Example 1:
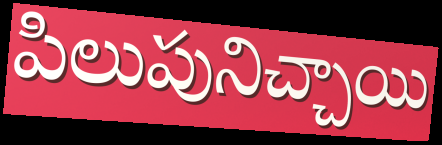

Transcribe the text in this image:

పిలుపునిచ్చాయి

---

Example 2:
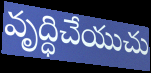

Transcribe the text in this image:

వృద్ధిచేయుచు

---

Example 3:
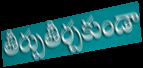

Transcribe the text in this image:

తీర్పుతీర్చకుండా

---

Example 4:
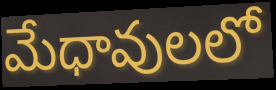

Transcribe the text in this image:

మేధావులలో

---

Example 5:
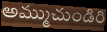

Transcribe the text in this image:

అమ్ముచుండిరి